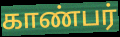
காண்பர்